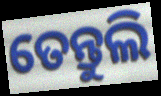
ତେନ୍ତୁଲି